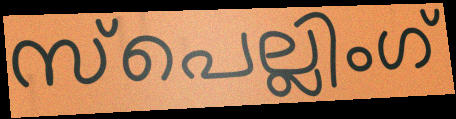
സ്പെല്ലിംഗ്